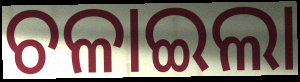
ଚଳାଇଲା